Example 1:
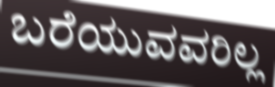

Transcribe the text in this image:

ಬರೆಯುವವರಿಲ್ಲ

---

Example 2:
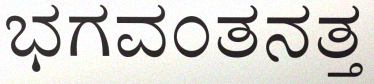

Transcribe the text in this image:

ಭಗವಂತನತ್ತ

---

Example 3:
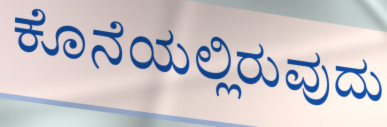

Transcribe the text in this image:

ಕೊನೆಯಲ್ಲಿರುವುದು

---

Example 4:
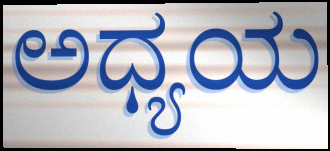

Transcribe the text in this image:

ಅಧ್ಯಯ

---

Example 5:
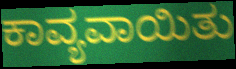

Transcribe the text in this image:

ಕಾವ್ಯವಾಯಿತು